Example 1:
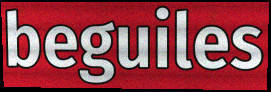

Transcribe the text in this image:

beguiles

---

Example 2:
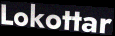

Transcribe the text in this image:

Lokottar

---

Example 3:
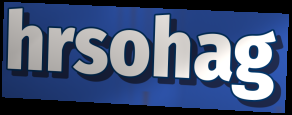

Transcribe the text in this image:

hrsohag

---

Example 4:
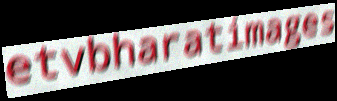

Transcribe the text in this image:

etvbharatimages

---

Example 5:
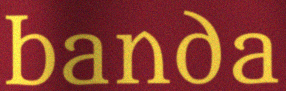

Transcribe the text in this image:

banda